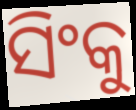
ସିଂକୁ